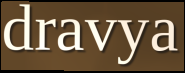
dravya